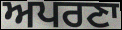
ਅਪਰਣਾ